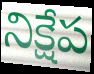
నిక్షేప